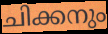
ചിക്കനും